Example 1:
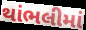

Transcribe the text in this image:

થાંભલીમાં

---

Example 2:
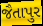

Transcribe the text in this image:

જૈતાપુર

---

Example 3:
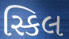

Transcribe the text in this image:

સ્કિલ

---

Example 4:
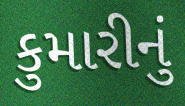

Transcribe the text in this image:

કુમારીનું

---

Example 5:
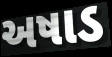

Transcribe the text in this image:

અષાડ